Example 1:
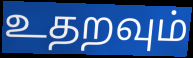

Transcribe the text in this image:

உதறவும்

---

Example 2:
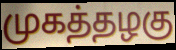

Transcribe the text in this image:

முகத்தழகு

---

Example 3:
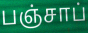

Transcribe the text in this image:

பஞ்சாப்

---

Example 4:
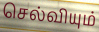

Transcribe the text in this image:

செல்வியும்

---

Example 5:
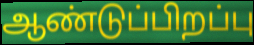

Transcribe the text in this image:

ஆண்டுப்பிறப்பு